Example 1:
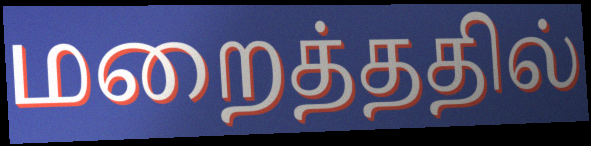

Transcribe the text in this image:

மறைத்ததில்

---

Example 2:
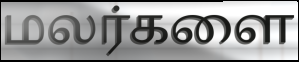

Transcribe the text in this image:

மலர்களை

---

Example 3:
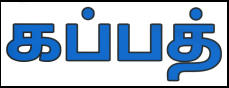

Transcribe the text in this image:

கப்பத்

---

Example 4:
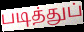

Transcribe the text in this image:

படித்துப்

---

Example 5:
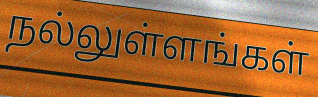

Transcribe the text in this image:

நல்லுள்ளங்கள்